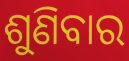
ଶୁଣିବାର